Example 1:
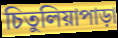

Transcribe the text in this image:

চিতুলিয়াপাড়া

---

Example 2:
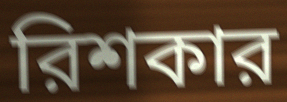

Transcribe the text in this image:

রিশকার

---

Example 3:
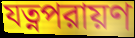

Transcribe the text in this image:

যত্নপরায়ণ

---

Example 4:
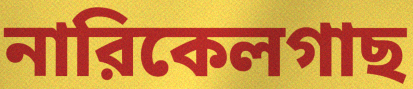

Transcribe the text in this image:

নারিকেলগাছ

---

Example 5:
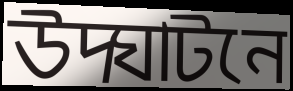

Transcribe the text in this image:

উদ্ঘাটনে